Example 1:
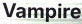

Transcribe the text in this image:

Vampire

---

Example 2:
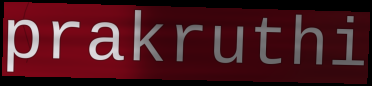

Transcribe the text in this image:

prakruthi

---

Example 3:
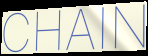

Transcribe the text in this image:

CHAIN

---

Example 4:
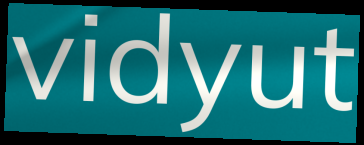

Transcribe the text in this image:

vidyut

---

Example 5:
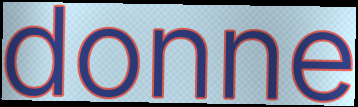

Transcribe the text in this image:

donne